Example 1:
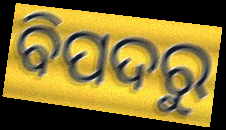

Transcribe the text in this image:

ବିପଦରୁ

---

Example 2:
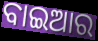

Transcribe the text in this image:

ବାଇଆର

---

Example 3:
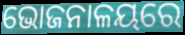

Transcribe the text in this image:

ଭୋଜନାଳୟରେ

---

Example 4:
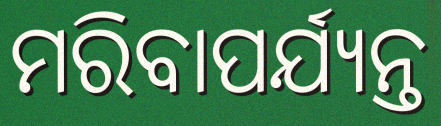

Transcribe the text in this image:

ମରିବାପର୍ଯ୍ୟନ୍ତ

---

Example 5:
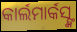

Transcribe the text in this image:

କାର୍ଲମାର୍କସ୍ଙ୍କ